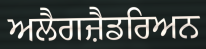
ਅਲੈਗਜ਼ੈਡਰਿਅਨ